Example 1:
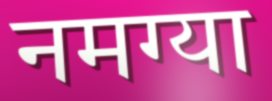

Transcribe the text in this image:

नमग्या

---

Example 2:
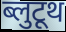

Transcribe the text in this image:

ब्लुटूथ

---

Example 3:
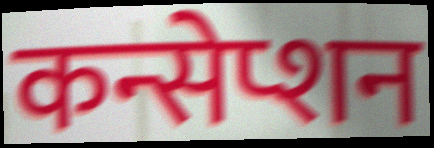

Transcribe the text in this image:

कन्सेप्शन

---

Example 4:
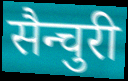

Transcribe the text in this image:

सैन्चुरी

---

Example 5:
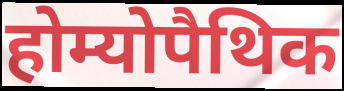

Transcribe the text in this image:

होम्योपैथिक